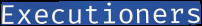
Executioners